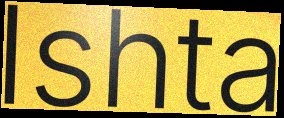
Ishta